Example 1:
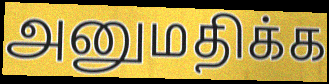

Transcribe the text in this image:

அனுமதிக்க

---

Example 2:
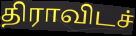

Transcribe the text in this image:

திராவிடச்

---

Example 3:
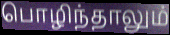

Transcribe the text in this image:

பொழிந்தாலும்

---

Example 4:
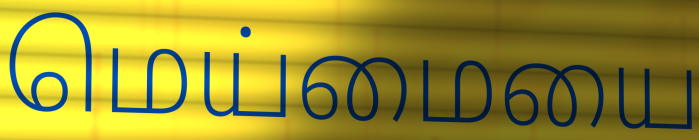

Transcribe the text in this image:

மெய்மையை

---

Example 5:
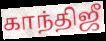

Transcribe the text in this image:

காந்திஜீ